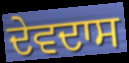
ਦੇਵਦਾਸ